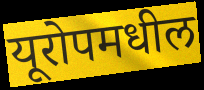
यूरोपमधील